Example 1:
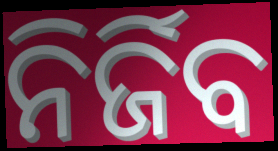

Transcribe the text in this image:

ନିର୍ଜିବ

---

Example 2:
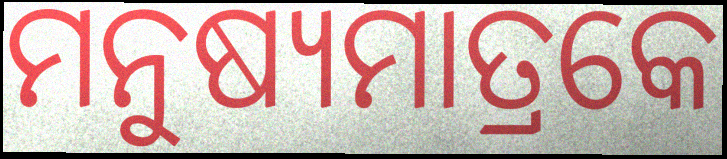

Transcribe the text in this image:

ମନୁଷ୍ୟମାତ୍ରକେ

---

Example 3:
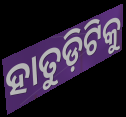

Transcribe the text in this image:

ହାତୁଡ଼ିଟିକୁ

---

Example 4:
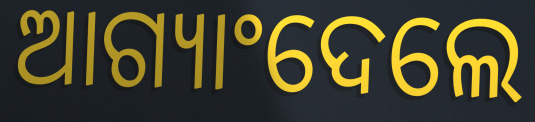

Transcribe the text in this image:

ଆଗ୍ୟାଂଦେଲେ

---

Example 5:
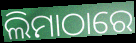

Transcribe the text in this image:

ଲିମାଠାରେ